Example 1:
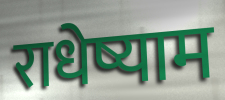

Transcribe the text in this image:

राधेष्याम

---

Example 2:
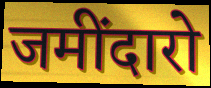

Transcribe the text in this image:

जमींदारो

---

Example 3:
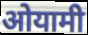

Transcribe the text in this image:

ओयामी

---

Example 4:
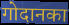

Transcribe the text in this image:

गोदानका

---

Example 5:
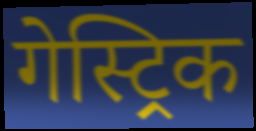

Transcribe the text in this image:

गेस्ट्रिक